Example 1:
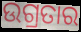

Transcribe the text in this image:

ଉଗ୍ରତାର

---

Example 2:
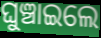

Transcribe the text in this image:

ଘୁଞ୍ଚାଇଲେ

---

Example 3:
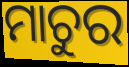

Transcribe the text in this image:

ମାଚୁର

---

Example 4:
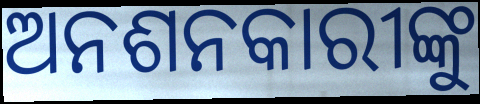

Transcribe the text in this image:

ଅନଶନକାରୀଙ୍କୁ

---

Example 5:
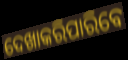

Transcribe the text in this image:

ଦେଖାକରିପାରିବେ